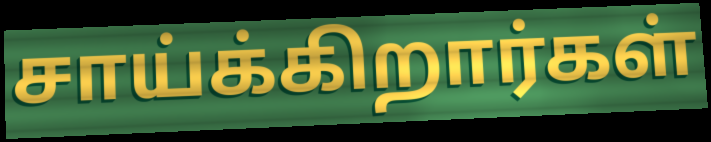
சாய்க்கிறார்கள்